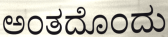
ಅಂತದೊಂದು